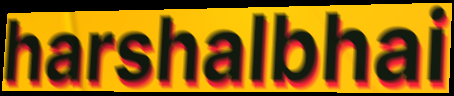
harshalbhai